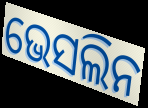
ଭେସଲିନ